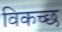
विकच्छ